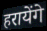
हरायेंगे